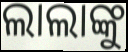
ଲାଲାଙ୍କୁ